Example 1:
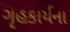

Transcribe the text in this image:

ગૃહકાર્યના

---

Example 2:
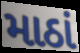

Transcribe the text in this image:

માઠાં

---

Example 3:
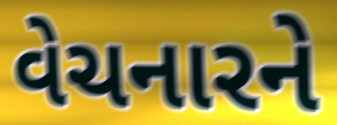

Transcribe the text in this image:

વેચનારને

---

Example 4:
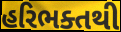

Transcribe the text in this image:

હરિભક્તથી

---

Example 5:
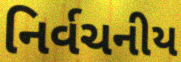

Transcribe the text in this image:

નિર્વચનીય